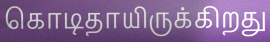
கொடிதாயிருக்கிறது